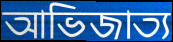
আভিজাত্য